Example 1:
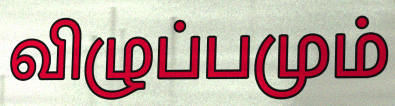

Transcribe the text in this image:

விழுப்பமும்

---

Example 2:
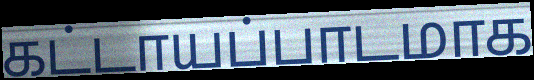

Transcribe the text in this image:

கட்டாயப்பாடமாக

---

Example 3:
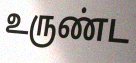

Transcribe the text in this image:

உருண்ட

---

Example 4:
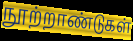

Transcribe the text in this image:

நூற்றாண்டுகள்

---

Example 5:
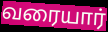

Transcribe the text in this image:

வரையார்